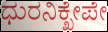
ಧುರನಿಕ್ಖೇಪೇ